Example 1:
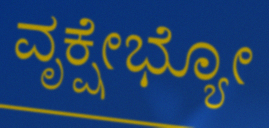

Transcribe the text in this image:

ವೃಕ್ಷೇಭ್ಯೋ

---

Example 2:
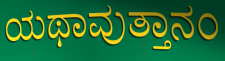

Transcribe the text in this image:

ಯಥಾವುತ್ತಾನಂ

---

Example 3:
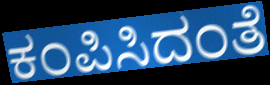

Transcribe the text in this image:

ಕಂಪಿಸಿದಂತೆ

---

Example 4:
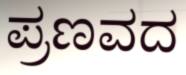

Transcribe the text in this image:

ಪ್ರಣವದ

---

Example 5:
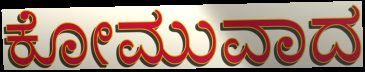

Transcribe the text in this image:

ಕೋಮುವಾದ